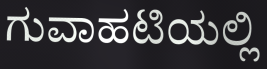
ಗುವಾಹಟಿಯಲ್ಲಿ